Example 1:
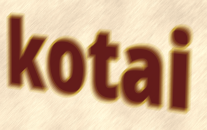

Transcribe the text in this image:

kotai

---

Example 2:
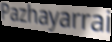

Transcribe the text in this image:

Pazhayarrai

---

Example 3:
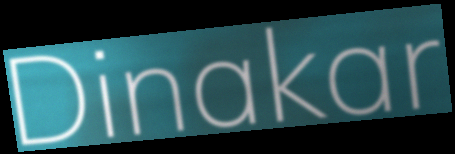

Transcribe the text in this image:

Dinakar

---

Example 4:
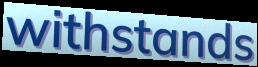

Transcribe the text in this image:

withstands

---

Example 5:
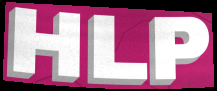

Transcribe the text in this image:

HLP